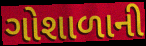
ગોશાળાની